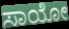
ಸಾಯೋ